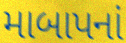
માબાપનાં